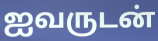
ஐவருடன்